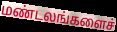
மண்டலங்களைச்